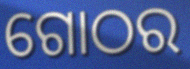
ଗୋଠର